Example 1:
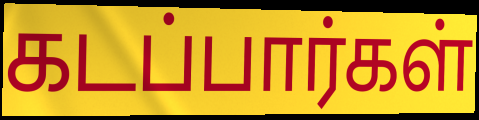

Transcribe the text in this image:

கடப்பார்கள்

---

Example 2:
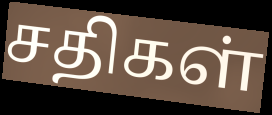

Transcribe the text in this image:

சதிகள்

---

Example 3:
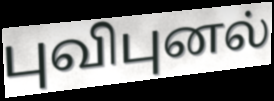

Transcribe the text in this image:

புவிபுனல்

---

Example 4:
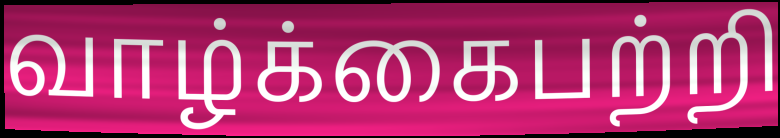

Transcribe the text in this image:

வாழ்க்கைபற்றி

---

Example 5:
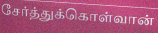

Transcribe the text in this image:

சேர்த்துக்கொள்வான்